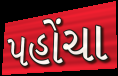
પહોંચા